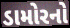
ડામોરનો